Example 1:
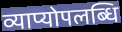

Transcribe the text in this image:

व्याप्योपलब्धि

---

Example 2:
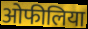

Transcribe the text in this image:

ओफीलिया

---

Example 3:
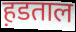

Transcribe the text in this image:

ह़डताल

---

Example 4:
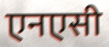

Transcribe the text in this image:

एनएसी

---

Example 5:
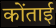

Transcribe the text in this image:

कोंताई